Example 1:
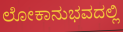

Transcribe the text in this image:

ಲೋಕಾನುಭವದಲ್ಲಿ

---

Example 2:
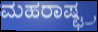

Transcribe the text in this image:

ಮಹರಾಷ್ಟ್ರ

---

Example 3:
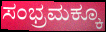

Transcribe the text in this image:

ಸಂಭ್ರಮಕ್ಕೂ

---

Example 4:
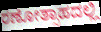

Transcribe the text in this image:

ರಣೋತ್ಸಾಹದಲ್ಲಿ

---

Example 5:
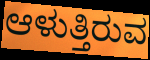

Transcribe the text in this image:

ಆಳುತ್ತಿರುವ